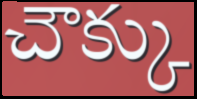
చౌక్కు